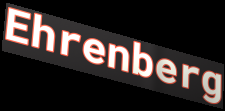
Ehrenberg